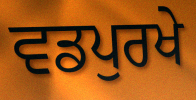
ਵਡਪੁਰਖੇ